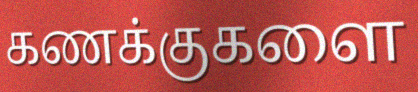
கணக்குகளை